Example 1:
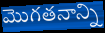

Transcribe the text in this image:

మొగతనాన్ని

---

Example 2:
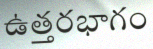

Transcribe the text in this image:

ఉత్తరభాగం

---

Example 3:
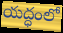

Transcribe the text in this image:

యద్ధంలో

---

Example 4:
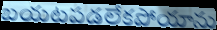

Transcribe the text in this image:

బయటపడలేకపోయాను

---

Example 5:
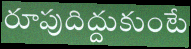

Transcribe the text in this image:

రూపుదిద్దుకుంటే